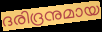
ദരിദ്രനുമായ